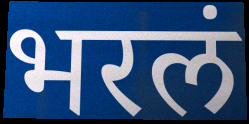
भरलं